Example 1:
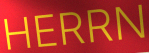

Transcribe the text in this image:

HERRN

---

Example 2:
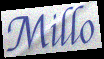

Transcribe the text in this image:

Millo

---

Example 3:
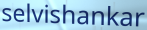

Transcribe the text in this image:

selvishankar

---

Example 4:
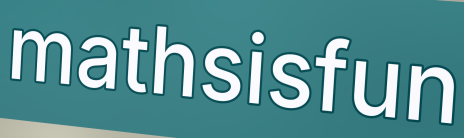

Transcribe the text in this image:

mathsisfun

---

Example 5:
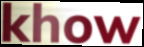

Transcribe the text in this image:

khow